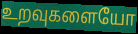
உறவுகளையோ